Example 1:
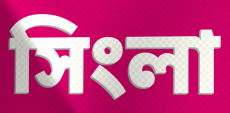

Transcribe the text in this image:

সিংলা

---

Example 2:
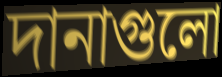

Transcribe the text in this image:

দানাগুলো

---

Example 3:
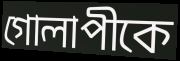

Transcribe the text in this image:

গোলাপীকে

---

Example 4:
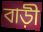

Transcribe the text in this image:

বাড়ী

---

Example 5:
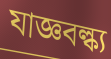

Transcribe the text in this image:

যাজ্ঞবল্ক্য